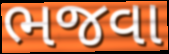
ભજવા